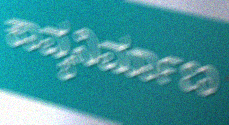
ಕಾವ್ಯನಿರ್ಮಾಣ